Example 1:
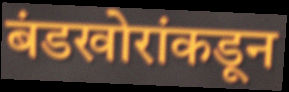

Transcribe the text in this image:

बंडखोरांकडून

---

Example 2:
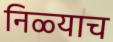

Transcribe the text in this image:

निळ्याच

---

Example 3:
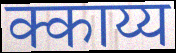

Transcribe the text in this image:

क्काय्य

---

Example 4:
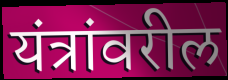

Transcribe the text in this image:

यंत्रांवरील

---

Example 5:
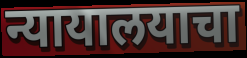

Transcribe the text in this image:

न्यायालयाचा